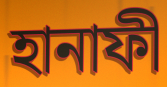
হানাফী